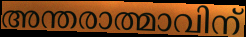
അന്തരാത്മാവിന്